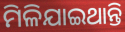
ମିଳିଯାଇଥାନ୍ତି